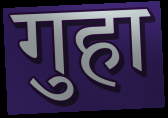
गुहा